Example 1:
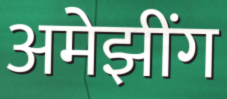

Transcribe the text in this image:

अमेझींग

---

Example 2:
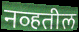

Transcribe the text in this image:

नव्हतील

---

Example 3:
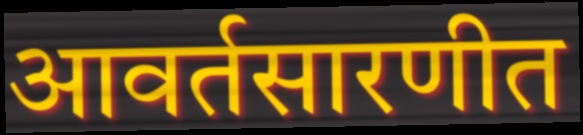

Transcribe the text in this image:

आवर्तसारणीत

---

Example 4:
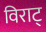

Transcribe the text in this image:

विराट्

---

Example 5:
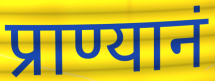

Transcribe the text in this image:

प्राण्यानं